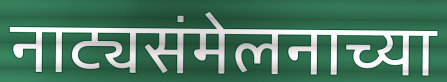
नाट्यसंमेलनाच्या